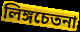
লিঙ্গচেতনা